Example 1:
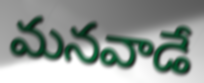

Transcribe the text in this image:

మనవాడే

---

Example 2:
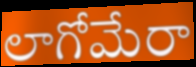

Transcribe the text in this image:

లాగోమేరా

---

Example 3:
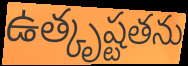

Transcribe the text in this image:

ఉత్కృష్టతను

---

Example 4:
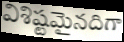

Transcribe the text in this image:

విశిష్టమైనదిగా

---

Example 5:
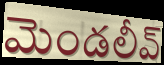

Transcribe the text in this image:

మెండలీవ్